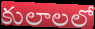
కులాలలో